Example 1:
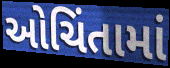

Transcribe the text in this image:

ઓચિંતામાં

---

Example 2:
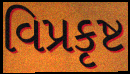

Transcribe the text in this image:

વિપ્રકૃષ્ટ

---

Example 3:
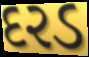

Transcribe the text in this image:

દરડ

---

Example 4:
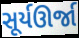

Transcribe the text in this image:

સૂર્યઊર્જા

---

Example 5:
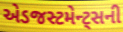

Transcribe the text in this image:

એડજસ્ટમેન્ટ્સની